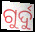
ଗୁର୍ଦୁ